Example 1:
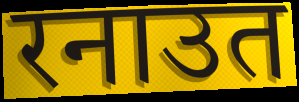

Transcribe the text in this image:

रनाउत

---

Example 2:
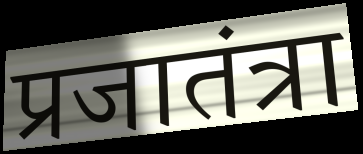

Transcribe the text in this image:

प्रजातंत्रा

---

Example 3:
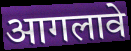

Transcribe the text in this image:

आगलावे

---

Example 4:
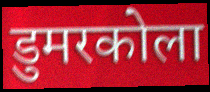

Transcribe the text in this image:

डुमरकोला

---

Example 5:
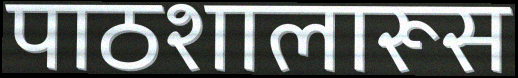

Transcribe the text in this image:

पाठशालारूस